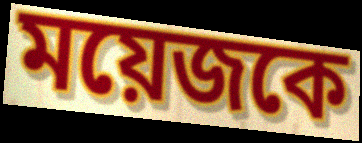
ময়েজকে